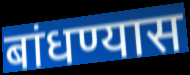
बांधण्यास